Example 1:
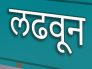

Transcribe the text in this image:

लढवून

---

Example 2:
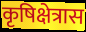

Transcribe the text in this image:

कृषिक्षेत्रास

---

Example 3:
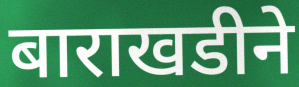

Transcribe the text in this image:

बाराखडीने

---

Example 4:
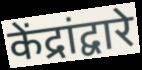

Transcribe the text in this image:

केंद्रांद्वारे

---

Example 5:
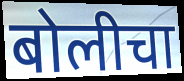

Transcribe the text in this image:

बोलीचा